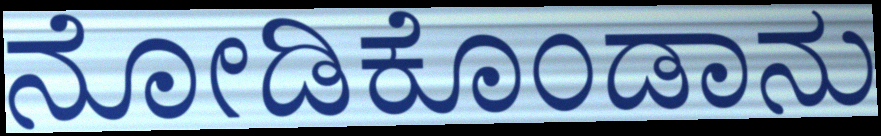
ನೋಡಿಕೊಂಡಾನು